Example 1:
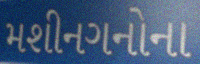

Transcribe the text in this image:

મશીનગનોના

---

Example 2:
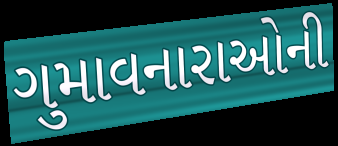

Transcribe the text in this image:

ગુમાવનારાઓની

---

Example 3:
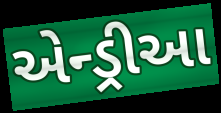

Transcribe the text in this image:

એન્ડ્રીઆ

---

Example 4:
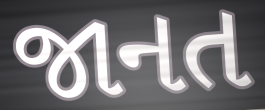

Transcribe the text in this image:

જાનત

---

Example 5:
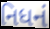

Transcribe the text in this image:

નિધનં